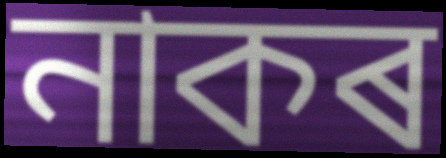
নাকৰ